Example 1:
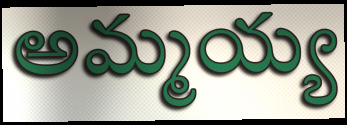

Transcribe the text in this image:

అమ్మయ్య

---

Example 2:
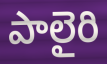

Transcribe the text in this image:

పాలైరి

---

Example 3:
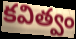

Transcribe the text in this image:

కవిత్వం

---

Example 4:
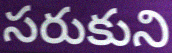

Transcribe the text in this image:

సరుకుని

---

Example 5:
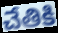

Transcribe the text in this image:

చేతికి